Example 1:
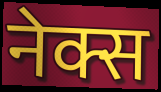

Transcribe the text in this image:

नेक्स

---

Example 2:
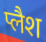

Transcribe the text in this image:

प्लैश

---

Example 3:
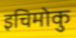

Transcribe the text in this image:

इचिमोकु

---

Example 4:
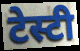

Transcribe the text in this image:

टेस्टी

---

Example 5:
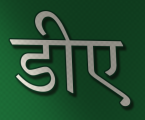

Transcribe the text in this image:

डीए